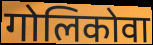
गोलिकोवा